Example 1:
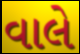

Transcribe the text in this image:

વાલે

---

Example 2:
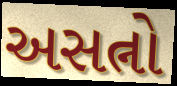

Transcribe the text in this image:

અસત્નો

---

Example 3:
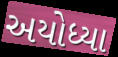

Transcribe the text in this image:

અયોધ્યા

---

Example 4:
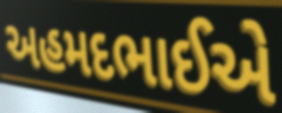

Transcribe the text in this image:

અહમદભાઈએ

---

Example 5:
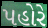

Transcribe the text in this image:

પહોરે